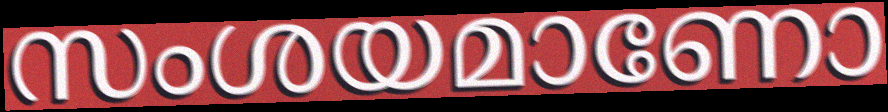
സംശയമാണോ